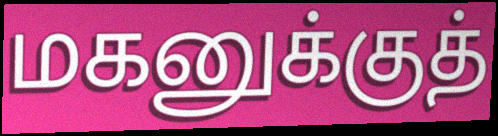
மகனுக்குத்